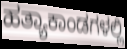
ಹತ್ಯಾಕಾಂಡಗಳಲ್ಲಿ